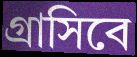
গ্রাসিবে